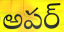
అపర్